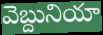
వెబ్దునియా